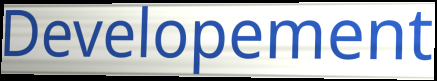
Developement